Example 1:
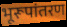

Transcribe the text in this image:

भूरूपांतरण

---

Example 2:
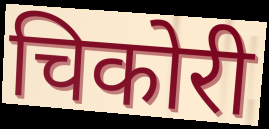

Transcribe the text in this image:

चिकोरी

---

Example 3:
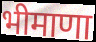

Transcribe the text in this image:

भीमाणा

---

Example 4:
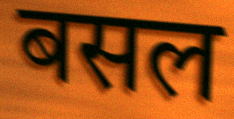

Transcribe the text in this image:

बसल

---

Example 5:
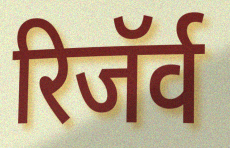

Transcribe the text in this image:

रिजॅर्व